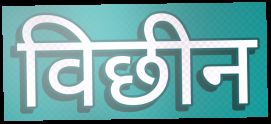
विछीन